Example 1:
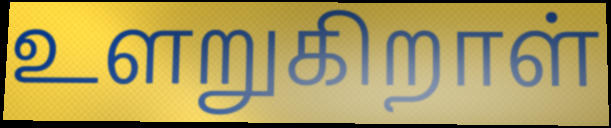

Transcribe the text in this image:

உளறுகிறாள்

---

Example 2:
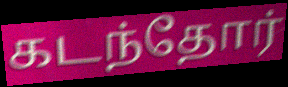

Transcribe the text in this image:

கடந்தோர்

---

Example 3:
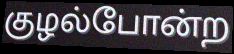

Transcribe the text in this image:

குழல்போன்ற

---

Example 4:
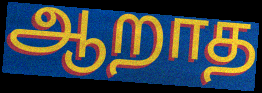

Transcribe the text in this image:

ஆறாத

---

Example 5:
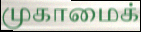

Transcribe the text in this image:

முகாமைக்